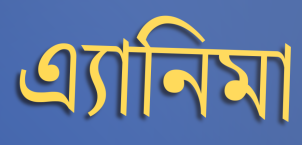
এ্যানিমা